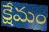
క్షేమం